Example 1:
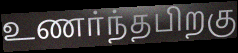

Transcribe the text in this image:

உணர்ந்தபிறகு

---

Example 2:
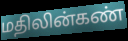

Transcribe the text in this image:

மதிலின்கண்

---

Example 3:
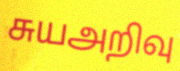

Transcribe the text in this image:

சுயஅறிவு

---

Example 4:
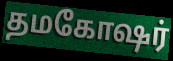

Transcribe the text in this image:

தமகோஷர்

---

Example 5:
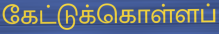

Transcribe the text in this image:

கேட்டுக்கொள்ளப்